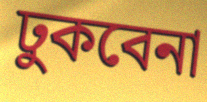
ঢুকবেনা